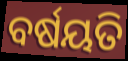
ବର୍ଷୟତି